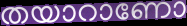
തയാറാണോ